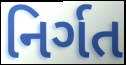
નિર્ગત